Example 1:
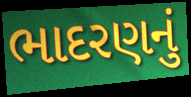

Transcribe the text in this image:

ભાદરણનું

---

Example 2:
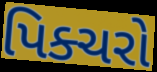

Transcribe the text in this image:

પિક્ચરો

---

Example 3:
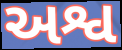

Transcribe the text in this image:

અશ્વ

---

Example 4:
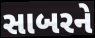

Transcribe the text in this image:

સાબરને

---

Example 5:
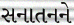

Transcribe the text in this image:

સનાતનને